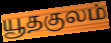
யூதகுலம்